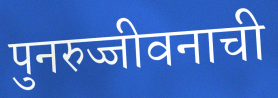
पुनरुज्जीवनाची